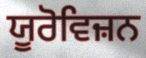
ਯੂਰੋਵਿਜ਼ਨ